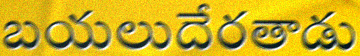
బయలుదేరతాడు